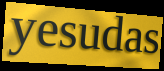
yesudas